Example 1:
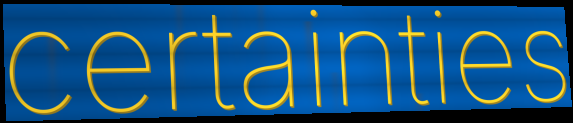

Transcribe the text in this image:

certainties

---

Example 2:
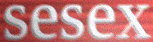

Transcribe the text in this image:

sesex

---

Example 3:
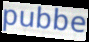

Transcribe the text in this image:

pubbe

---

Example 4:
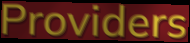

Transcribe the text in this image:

Providers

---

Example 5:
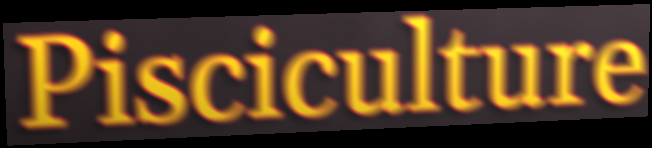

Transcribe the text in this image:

Pisciculture